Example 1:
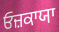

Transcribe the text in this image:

ਓਜ਼ਕਾਯਾ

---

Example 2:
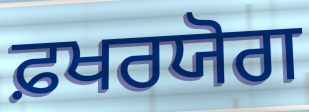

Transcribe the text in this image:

ਫ਼ਖਰਯੋਗ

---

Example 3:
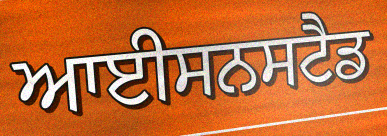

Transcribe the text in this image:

ਆਈਸਨਸਟੈਡ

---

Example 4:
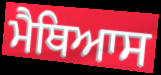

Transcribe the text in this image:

ਮੈਥਿਆਸ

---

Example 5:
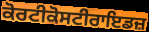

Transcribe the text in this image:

ਕੋਰਟੀਕੋਸਟੀਰਾਇਡਜ਼